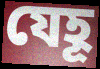
যেহূ